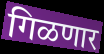
गिळणार